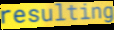
resulting